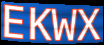
EKWX